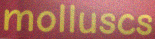
molluscs